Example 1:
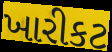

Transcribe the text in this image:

ખારીકટ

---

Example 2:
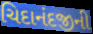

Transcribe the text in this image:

ચિદાનંદજીની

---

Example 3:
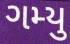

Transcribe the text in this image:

ગમ્યુ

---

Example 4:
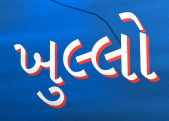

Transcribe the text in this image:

ખુલ્લો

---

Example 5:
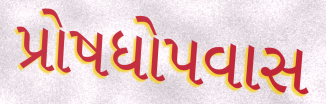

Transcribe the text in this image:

પ્રોષધોપવાસ